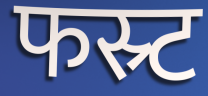
फस्र्ट